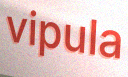
vipula